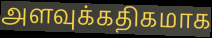
அளவுக்கதிகமாக